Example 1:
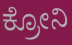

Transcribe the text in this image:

ಕ್ರೋನಿ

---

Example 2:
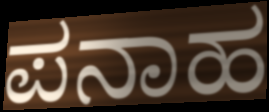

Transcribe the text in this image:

ಪನಾಹ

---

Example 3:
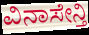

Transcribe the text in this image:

ವಿನಾಸೇನ್ತಿ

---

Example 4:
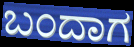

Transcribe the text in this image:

ಬಂದಾಗ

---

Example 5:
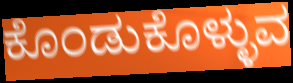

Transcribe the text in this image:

ಕೊಂಡುಕೊಳ್ಳುವ